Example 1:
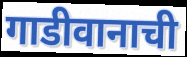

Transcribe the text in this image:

गाडीवानाची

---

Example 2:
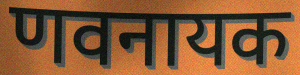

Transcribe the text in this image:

णवनायक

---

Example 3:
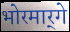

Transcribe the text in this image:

भोरमार्गे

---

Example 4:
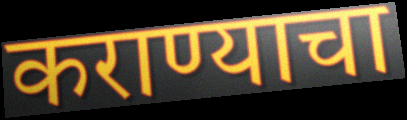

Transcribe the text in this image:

कराण्याचा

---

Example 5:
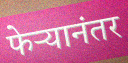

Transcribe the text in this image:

फेऱ्यानंतर